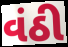
વંઠી